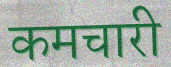
कमचारी